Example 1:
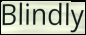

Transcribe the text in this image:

Blindly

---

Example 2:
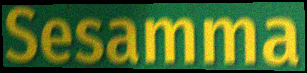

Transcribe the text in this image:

Sesamma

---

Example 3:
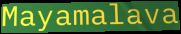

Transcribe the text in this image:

Mayamalava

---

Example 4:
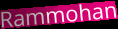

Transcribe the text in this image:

Rammohan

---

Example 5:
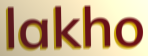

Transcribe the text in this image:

lakho